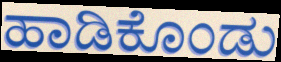
ಹಾಡಿಕೊಂಡು